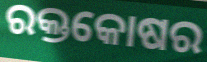
ରକ୍ତକୋଷର